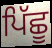
ਪਿੱਛੂ